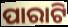
ପାରାଟି